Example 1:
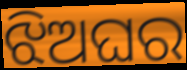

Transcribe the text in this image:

ଝିଅଘର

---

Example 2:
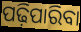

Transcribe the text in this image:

ପଢ଼ିପାରିବା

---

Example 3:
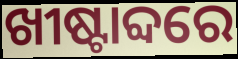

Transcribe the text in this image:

ଖୀଷ୍ଟାବ୍ଦରେ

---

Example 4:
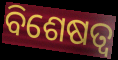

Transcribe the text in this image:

ବିଶେଷତ୍ଵ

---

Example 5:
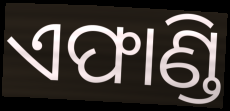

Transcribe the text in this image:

ଏଫାଣ୍ଡି